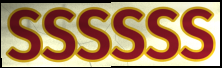
SSSSSS